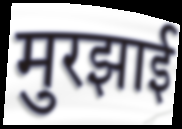
मुरझाई